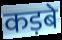
कड़बे